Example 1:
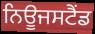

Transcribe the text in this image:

ਨਿਊਜਸਟੈਂਡ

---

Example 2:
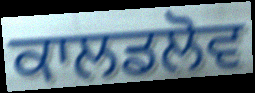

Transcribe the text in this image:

ਕਾਲਡਲੋਵ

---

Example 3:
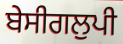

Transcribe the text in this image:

ਬੇਸੀਗਲੁਪੀ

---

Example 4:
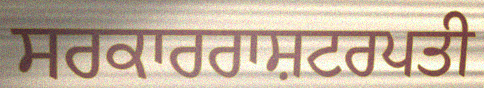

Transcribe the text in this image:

ਸਰਕਾਰਰਾਸ਼ਟਰਪਤੀ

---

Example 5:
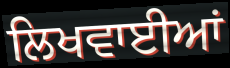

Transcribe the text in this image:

ਲਿਖਵਾਈਆਂ